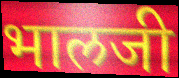
भालजी